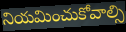
నియమించుకోవాల్సి